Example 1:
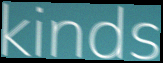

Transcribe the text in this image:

kinds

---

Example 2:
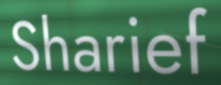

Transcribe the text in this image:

Sharief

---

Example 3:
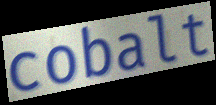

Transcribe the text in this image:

cobalt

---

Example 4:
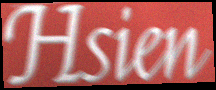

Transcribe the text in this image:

Hsien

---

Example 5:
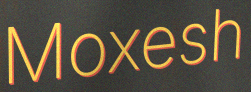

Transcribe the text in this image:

Moxesh